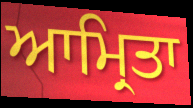
ਆਮ੍ਰਿਤਾ